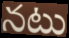
నటు